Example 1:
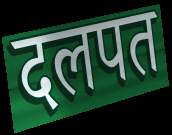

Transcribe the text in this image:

दलपत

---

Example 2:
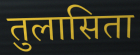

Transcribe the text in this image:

तुलासिता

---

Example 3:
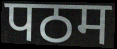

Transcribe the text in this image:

पठम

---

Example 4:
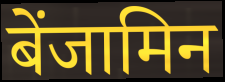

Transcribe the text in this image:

बेंजामिन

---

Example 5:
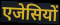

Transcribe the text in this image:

एजेसियों